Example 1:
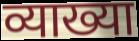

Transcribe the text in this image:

व्याख्‍या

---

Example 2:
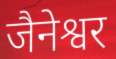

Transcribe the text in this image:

जैनेश्वर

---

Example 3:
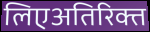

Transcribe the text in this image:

लिएअतिरिक्त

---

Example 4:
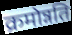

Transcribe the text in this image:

क्रमोन्नति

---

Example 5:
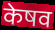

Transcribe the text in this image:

केषव